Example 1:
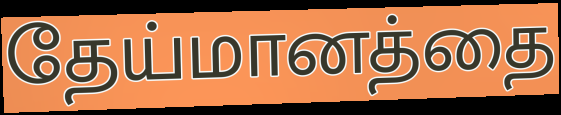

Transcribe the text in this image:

தேய்மானத்தை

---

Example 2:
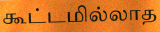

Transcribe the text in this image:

கூட்டமில்லாத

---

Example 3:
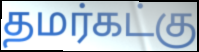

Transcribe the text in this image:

தமர்கட்கு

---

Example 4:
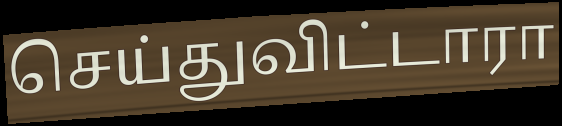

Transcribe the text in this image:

செய்துவிட்டாரா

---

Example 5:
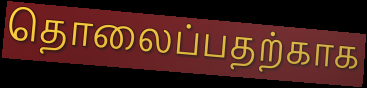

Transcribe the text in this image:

தொலைப்பதற்காக